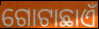
ଗୋଟାଛାଏଁ